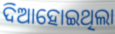
ଦିଆହୋଇଥିଲା